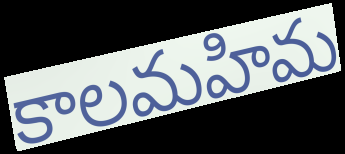
కాలమహిమ